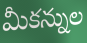
మీకన్నుల